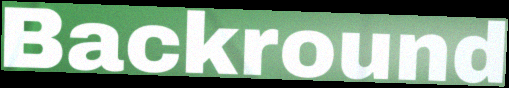
Backround